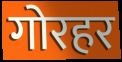
गोरहर